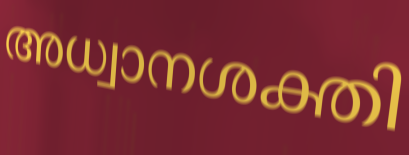
അധ്വാനശക്തി